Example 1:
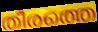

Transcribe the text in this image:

തീരത്തെ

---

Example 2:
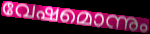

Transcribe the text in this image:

വേഷമൊന്നും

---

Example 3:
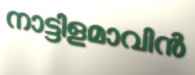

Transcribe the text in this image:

നാട്ടിളമാവിൻ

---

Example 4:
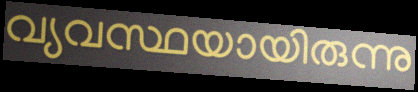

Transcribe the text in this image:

വ്യവസ്ഥയായിരുന്നു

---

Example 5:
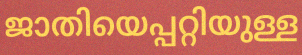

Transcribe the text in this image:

ജാതിയെപ്പറ്റിയുള്ള